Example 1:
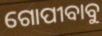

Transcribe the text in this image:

ଗୋପୀବାବୁ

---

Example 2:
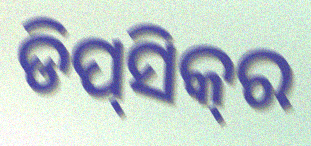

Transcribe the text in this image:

ଡିପ୍‌ସିକ୍‌ର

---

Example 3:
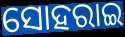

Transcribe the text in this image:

ସୋହରାଇ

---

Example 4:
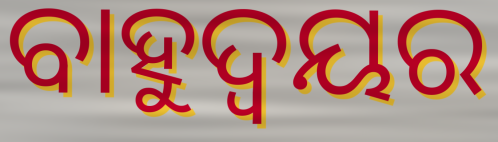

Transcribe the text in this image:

ବାହୁଦ୍ୱୟର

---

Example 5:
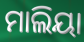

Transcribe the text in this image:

ମାଲିୟା